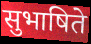
सुभाषिते